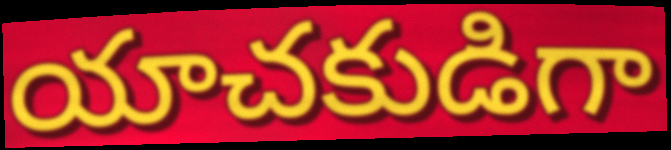
యాచకుడిగా